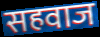
सहवाज